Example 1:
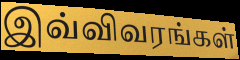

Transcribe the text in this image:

இவ்விவரங்கள்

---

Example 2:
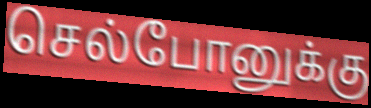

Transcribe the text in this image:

செல்போனுக்கு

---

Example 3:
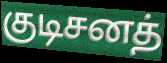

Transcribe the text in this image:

குடிசனத்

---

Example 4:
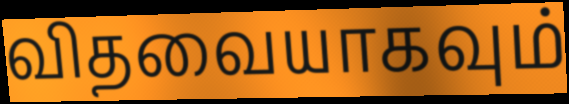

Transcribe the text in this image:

விதவையாகவும்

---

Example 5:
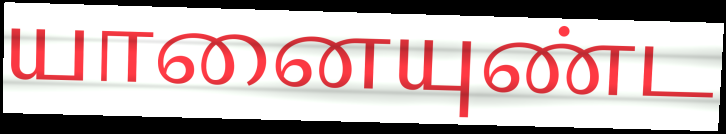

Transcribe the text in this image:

யானையுண்ட